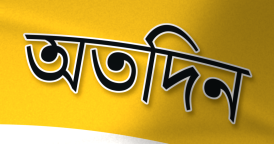
অতদিন